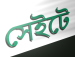
সেইটে